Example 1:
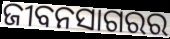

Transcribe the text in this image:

ଜୀବନସାଗରର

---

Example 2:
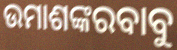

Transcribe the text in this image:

ଉମାଶଙ୍କରବାବୁ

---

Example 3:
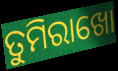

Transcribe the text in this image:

ତୁମିରାଖୋ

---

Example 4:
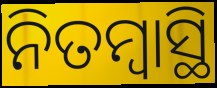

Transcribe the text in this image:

ନିତମ୍ବାସ୍ଥି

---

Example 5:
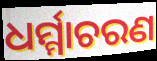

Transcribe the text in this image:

ଧର୍ମ୍ମାଚରଣ